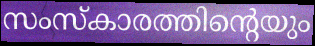
സംസ്കാരത്തിന്റെയും